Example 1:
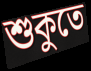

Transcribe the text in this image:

শুকুতে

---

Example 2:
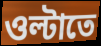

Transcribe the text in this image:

ওল্টাতে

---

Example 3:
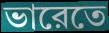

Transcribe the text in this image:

ভারেতে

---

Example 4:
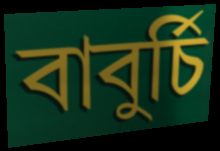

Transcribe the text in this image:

বাবুর্চি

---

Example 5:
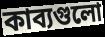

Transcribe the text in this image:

কাব্যগুলো